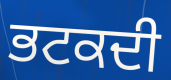
ਭਟਕਦੀ